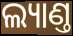
ଲ୍ୟାଣ୍ତ